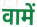
वामें